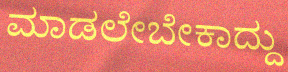
ಮಾಡಲೇಬೇಕಾದ್ದು